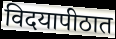
विदयापीठात